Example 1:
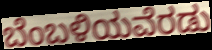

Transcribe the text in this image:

ಬೆಂಬಳಿಯವೆರಡು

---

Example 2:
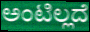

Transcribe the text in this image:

ಅಂಟಿಲ್ಲದೆ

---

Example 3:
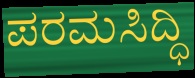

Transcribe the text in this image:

ಪರಮಸಿದ್ಧಿ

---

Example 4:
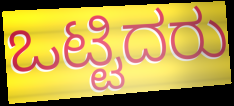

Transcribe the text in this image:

ಒಟ್ಟಿದರು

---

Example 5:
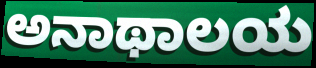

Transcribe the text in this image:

ಅನಾಥಾಲಯ